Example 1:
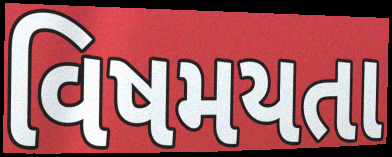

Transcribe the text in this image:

વિષમયતા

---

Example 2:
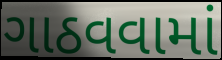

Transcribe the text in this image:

ગાઠવવામાં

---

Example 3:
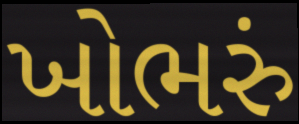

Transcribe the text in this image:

ખોભરું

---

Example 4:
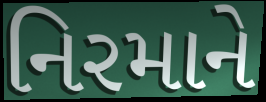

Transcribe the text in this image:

નિરમાને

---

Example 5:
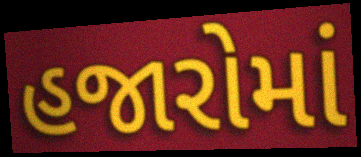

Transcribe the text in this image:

હજારોમાં